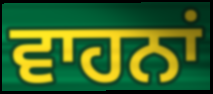
ਵਾਹਨਾਂ